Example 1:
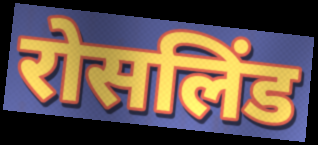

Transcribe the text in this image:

रोसलिंड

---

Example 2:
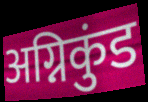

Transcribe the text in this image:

अग्निकुंड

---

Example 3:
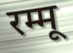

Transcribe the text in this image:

रम्मू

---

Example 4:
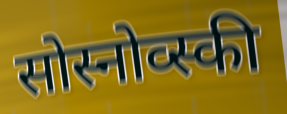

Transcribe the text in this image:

सोस्नोव्स्की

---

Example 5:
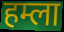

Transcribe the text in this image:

हम्ला